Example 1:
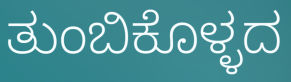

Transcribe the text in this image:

ತುಂಬಿಕೊಳ್ಳದ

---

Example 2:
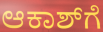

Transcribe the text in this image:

ಆಕಾಶ್‌ಗೆ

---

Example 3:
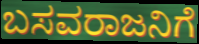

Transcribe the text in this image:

ಬಸವರಾಜನಿಗೆ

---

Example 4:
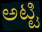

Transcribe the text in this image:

ಅಟ್ಟಿ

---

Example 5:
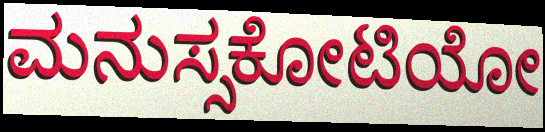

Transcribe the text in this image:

ಮನುಸ್ಸಕೋಟಿಯೋ